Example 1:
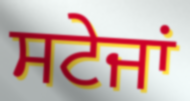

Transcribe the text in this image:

ਸਟੇਜਾਂ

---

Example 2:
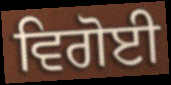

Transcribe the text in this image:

ਵਿਗੋਈ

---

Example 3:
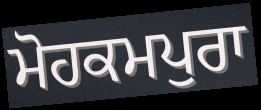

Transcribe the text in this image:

ਮੋਹਕਮਪੁਰਾ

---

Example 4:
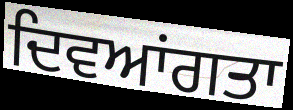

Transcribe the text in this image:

ਦਿਵਆਂਗਤਾ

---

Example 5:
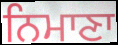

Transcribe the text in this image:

ਨਿਮਾਣਾ